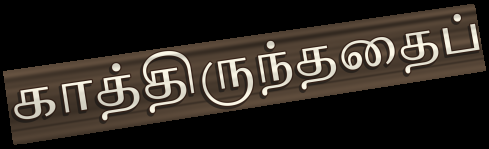
காத்திருந்ததைப்